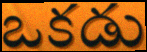
ఒకడు